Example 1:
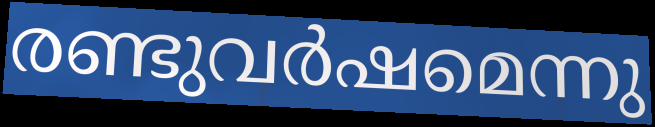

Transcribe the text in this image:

രണ്ടുവർഷമെന്നു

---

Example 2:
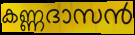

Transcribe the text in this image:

കണ്ണദാസൻ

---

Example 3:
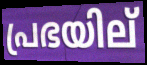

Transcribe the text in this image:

പ്രഭയില്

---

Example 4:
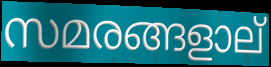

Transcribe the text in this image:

സമരങ്ങളാല്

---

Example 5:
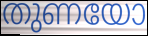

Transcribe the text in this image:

തുണയോ